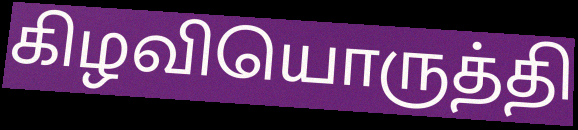
கிழவியொருத்தி